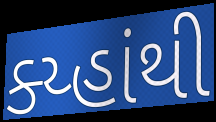
ક્ય્હાંથી